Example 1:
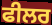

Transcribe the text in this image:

ਫੀਲਰ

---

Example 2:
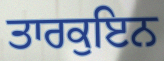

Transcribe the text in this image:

ਤਾਰਕੁਇਨ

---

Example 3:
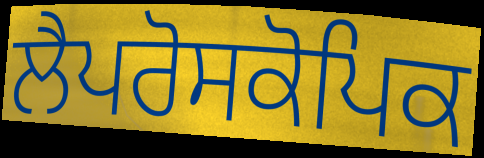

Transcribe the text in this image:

ਲੈਪਰੋਸਕੋਪਿਕ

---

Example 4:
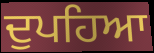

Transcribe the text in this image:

ਦੁਪਹਿਆ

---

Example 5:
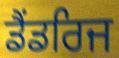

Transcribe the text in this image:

ਡੈਂਡਰਿਜ